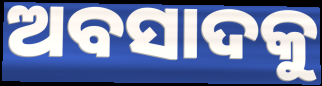
ଅବସାଦକୁ